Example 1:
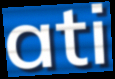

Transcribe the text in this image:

ati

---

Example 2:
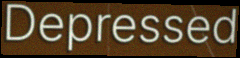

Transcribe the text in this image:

Depressed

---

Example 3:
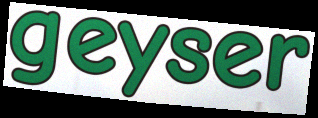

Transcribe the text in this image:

geyser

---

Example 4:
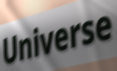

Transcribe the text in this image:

Universe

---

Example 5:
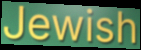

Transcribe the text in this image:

Jewish